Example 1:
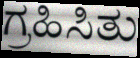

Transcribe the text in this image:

ಗ್ರಹಿಸಿತು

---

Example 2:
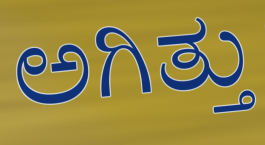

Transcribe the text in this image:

ಅಗಿತ್ತು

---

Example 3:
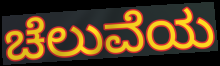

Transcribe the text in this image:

ಚೆಲುವೆಯ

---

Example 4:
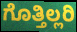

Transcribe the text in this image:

ಗೊತ್ತಿಲ್ಲರಿ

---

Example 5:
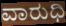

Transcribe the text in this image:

ವಾರುಧಿ